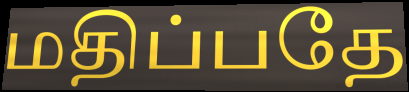
மதிப்பதே